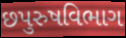
છપુરુષવિભાગ